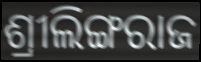
ଶ୍ରୀଲିଙ୍ଗରାଜ